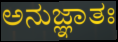
ಅನುಜ್ಞಾತಃ